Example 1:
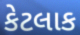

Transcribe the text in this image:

કેટલાક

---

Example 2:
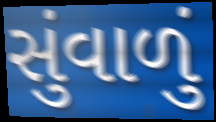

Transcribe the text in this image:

સુંવાળું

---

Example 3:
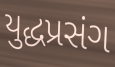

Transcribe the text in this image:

યુદ્ધપ્રસંગ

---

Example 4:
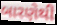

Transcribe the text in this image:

બારણેથી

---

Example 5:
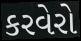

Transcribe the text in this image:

કરવેરો